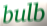
bulb